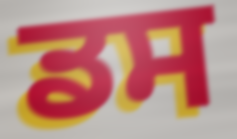
ਡਸ